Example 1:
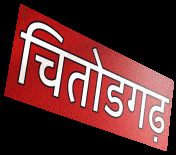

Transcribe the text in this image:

चितोडगढ़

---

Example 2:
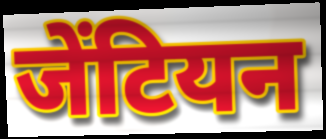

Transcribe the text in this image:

जेंटियन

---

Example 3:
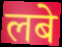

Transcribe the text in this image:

लबे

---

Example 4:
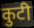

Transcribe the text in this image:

कुटी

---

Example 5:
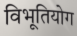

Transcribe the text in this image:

विभूतियोग